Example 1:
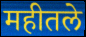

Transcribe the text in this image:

महीतले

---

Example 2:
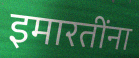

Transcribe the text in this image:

इमारतींना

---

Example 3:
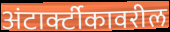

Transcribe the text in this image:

अंटार्क्टीकावरील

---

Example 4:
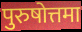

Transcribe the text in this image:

पुरुषोत्तमा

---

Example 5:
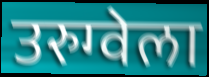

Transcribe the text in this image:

उरुग्वेला